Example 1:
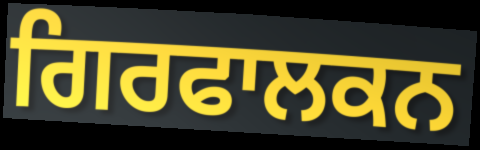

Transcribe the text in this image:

ਗਿਰਫਾਲਕਨ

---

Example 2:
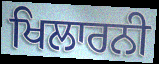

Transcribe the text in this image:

ਖਿਲਾਰਨੀ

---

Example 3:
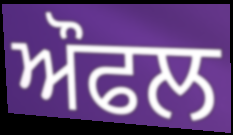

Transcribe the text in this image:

ਔਫਲ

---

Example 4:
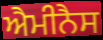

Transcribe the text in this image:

ਐਮੀਨੈਸ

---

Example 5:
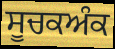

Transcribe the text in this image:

ਸੂਚਕਅੰਕ